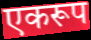
एकरूप